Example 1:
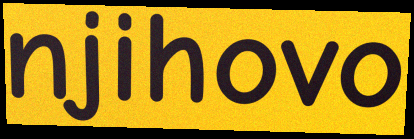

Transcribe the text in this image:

njihovo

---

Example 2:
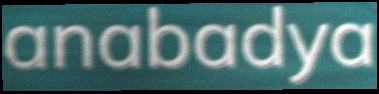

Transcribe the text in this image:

anabadya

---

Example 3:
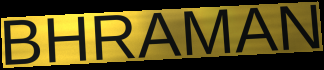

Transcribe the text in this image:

BHRAMAN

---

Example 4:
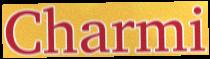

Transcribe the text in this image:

Charmi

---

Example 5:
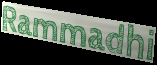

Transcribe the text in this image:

Rammadhi